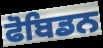
ਫੋਬਿਡਨ